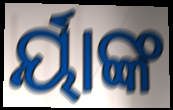
ର୍ୟାଙ୍କ